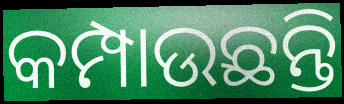
କମ୍ପାଉଛନ୍ତି